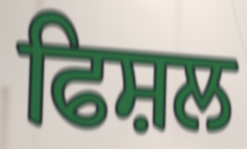
ਫਿਸ਼ਲ